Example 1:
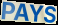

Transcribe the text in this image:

PAYS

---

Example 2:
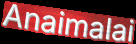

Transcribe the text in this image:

Anaimalai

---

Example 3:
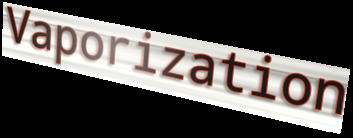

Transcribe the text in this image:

Vaporization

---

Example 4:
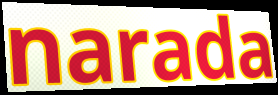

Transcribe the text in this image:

narada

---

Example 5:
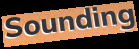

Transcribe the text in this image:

Sounding